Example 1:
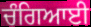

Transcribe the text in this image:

ਚੰਗਿਆਈ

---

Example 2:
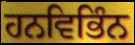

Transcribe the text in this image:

ਹਨਵਿਭਿੰਨ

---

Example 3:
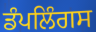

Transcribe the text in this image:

ਡੰਪਲਿੰਗਸ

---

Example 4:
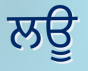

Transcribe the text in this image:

ਲਊ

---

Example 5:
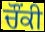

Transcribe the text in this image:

ਚੌਂਕੀ